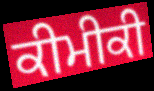
ਕੀਮੀਕੀ